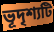
ভূদৃশ্যটি